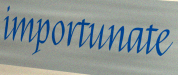
importunate